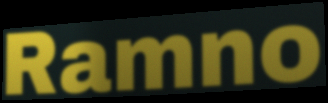
Ramno